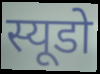
स्यूडो